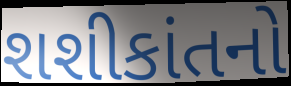
શશીકાંતનો